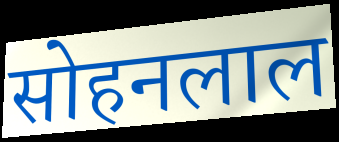
सोहनलाल